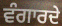
ਵੰਗਾਰਦੇ